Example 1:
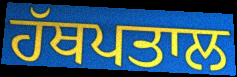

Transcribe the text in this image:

ਹੱਥਪਤਾਲ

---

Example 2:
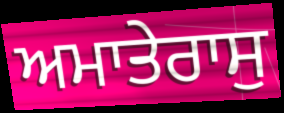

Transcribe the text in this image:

ਅਮਾਤੇਰਾਸੁ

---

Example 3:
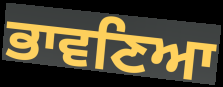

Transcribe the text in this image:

ਭਾਵਣਿਆ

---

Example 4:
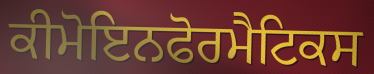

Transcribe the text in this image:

ਕੀਮੋਇਨਫੋਰਮੈਟਿਕਸ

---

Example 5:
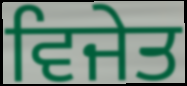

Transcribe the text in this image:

ਵਿਜੇਤ